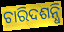
ଚାରିଦଶନ୍ଧି